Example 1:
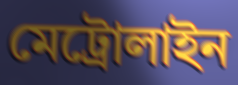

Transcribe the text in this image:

মেট্রোলাইন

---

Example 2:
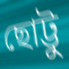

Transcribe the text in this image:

ছোট্টু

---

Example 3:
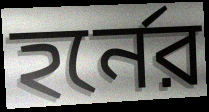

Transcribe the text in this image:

হর্নের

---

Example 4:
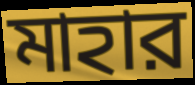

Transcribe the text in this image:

মাহার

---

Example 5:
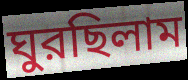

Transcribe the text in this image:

ঘুরছিলাম